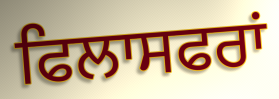
ਫਿਲਾਸਫਰਾਂ